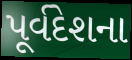
પૂર્વદેશના